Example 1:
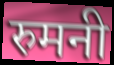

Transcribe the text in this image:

रुमनी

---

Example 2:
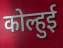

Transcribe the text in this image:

कोल्हुई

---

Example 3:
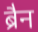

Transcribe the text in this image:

ब्रैन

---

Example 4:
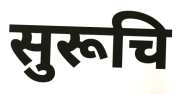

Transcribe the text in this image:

सुरूचि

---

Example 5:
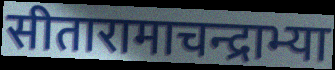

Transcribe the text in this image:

सीतारामाचन्द्राभ्या